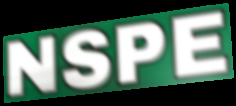
NSPE